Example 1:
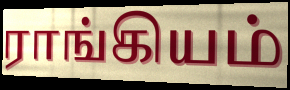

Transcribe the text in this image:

ராங்கியம்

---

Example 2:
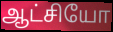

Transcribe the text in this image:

ஆட்சியோ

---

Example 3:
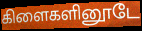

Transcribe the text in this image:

கிளைகளினூடே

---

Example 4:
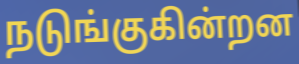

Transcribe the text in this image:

நடுங்குகின்றன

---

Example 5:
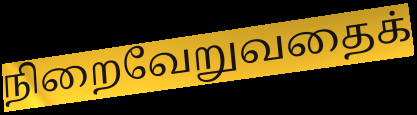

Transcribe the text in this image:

நிறைவேறுவதைக்